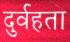
दुर्वहता